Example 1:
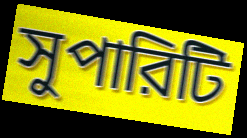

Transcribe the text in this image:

সুপারিটি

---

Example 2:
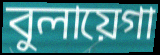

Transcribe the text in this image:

বুলায়েগা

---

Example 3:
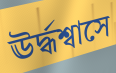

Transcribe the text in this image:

ঊর্দ্ধশ্বাসে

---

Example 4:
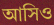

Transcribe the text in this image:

আসিও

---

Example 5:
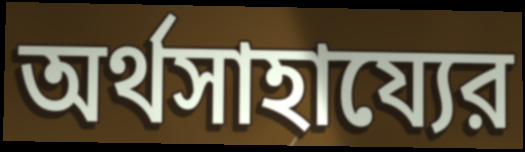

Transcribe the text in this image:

অর্থসাহায্যের